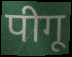
पीगू